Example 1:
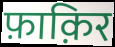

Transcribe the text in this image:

फ़ाक़िर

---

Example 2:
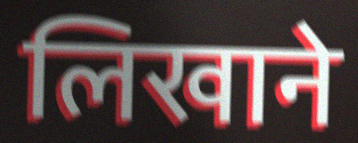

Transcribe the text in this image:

लिखाने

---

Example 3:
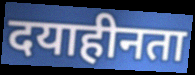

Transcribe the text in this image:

दयाहीनता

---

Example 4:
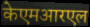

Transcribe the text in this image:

केएमआरएल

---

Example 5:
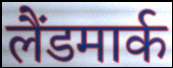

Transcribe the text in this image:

लैंडमार्क